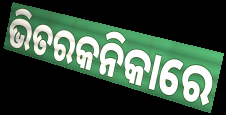
ଭିତରକନିକାରେ